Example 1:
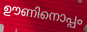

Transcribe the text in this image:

ഊണിനൊപ്പം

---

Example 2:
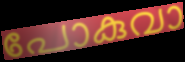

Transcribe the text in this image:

പോകുവാ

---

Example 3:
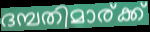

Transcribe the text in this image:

ദമ്പതിമാര്ക്ക്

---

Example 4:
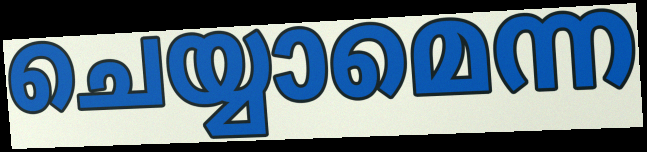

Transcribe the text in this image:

ചെയ്യാമെന്ന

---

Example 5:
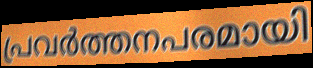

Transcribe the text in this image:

പ്രവർത്തനപരമായി